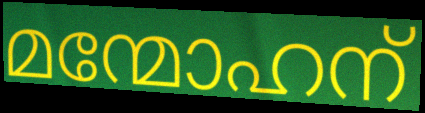
മന്മോഹന്